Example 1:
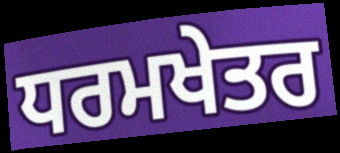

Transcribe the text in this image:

ਧਰਮਖੇਤਰ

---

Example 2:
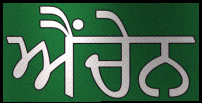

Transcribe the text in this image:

ਐਂਚੇਨ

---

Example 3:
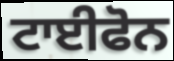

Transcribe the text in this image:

ਟਾਈਫੋਨ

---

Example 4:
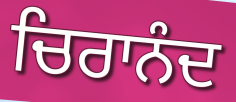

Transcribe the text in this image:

ਚਿਰਾਨੰਦ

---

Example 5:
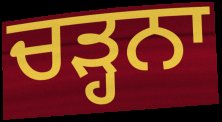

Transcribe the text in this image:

ਚੜ੍ਹਨਾ